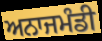
ਅਨਾਜਮੰਡੀ